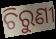
ଚିରୁଣୀ